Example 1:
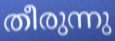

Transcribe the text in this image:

തീരുന്നു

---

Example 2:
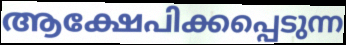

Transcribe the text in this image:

ആക്ഷേപിക്കപ്പെടുന്ന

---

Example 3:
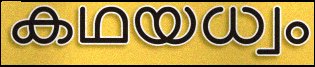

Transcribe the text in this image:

കഥയധ്വം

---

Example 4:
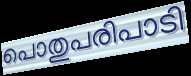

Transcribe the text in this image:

പൊതുപരിപാടി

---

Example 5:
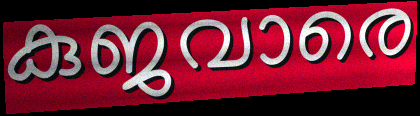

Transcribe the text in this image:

കുജവാരെ